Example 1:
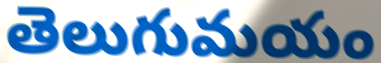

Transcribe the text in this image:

తెలుగుమయం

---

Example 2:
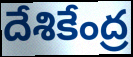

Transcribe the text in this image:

దేశికేంద్ర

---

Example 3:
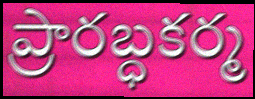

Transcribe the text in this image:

ప్రారబ్ధకర్మ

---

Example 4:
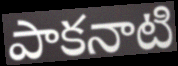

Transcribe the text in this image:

పాకనాటి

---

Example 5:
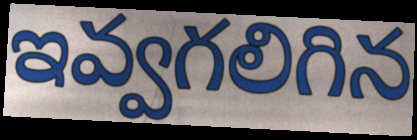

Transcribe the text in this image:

ఇవ్వగలిగిన